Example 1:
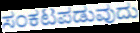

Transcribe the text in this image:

ಸಂಕಟಪಡುವುದು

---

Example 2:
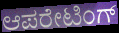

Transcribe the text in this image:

ಆಪರೇಟಿಂಗ್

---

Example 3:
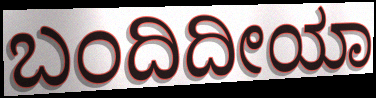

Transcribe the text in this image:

ಬಂದಿದೀಯಾ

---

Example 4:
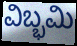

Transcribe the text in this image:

ವಿಬ್ಭಮಿ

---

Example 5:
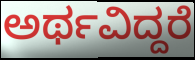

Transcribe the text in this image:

ಅರ್ಥವಿದ್ದರೆ